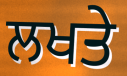
ਲਖਤੇ